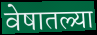
वेषातल्या